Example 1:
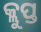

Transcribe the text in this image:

କ୍ଲୁପ୍ତ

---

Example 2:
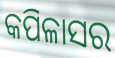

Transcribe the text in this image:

କପିଳାସର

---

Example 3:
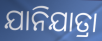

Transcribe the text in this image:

ଯାନିଯାତ୍ରା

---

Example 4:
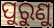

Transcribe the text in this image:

ପୁରୁଣୁ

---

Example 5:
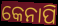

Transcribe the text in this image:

କେନାପି